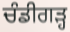
ਚੰਡੀਗੜ੍ਹ